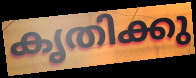
കൃതിക്കു